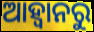
ଆହ୍ବାନରୁ